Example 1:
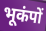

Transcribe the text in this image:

भूकंपों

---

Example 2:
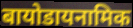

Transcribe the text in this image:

बायोडायनामिक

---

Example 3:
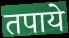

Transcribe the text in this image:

तपाये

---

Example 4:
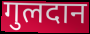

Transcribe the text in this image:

गुलदान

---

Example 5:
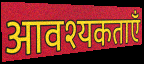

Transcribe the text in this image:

आवश्यकताएँ